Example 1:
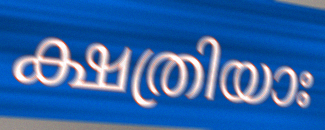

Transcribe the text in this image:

ക്ഷത്രിയാഃ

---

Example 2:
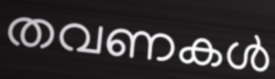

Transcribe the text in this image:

തവണകൾ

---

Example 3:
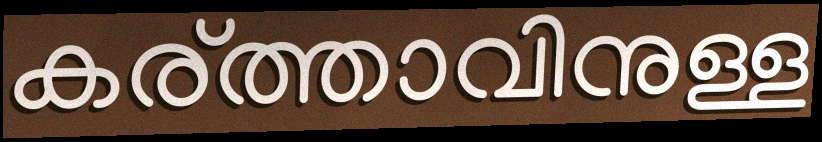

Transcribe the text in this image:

കര്ത്താവിനുള്ള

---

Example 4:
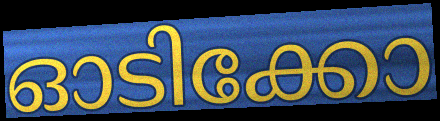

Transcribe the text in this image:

ഓടിക്കോ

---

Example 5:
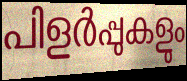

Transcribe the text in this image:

പിളർപ്പുകളും